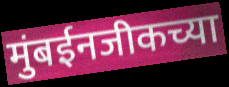
मुंबईनजीकच्या